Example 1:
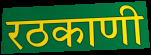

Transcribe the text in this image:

रठकाणी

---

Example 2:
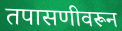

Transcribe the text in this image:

तपासणीवरून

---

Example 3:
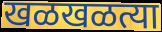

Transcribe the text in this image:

खळखळत्या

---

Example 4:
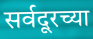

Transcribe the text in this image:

सर्वदूरच्या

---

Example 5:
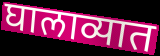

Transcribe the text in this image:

घालाव्यात